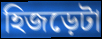
হিজড়েটা